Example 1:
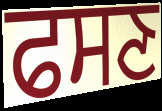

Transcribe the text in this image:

ਫਸਣ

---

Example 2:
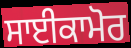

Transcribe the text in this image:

ਸਾਈਕਾਮੋਰ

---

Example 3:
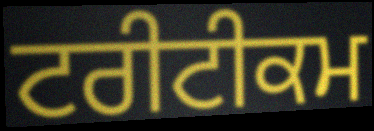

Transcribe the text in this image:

ਟਰੀਟੀਕਮ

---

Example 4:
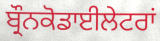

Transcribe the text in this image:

ਬ੍ਰੌਨਕੋਡਾਈਲੇਟਰਾਂ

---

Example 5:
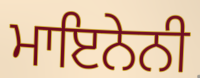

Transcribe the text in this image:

ਮਾਇਨੇਨੀ